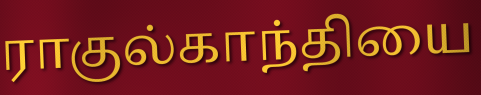
ராகுல்காந்தியை